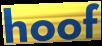
hoof